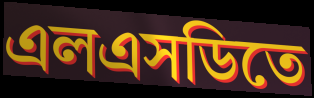
এলএসডিতে